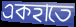
একহাতে